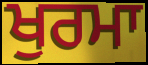
ਖੁਰਮਾ